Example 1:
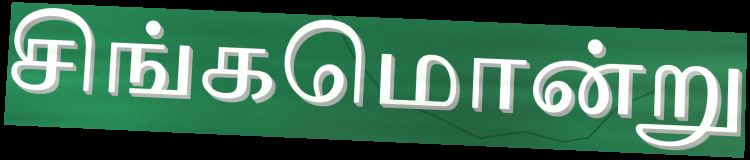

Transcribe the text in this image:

சிங்கமொன்று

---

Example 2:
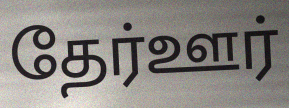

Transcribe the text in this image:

தேர்ஊர்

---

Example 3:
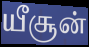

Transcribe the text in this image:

யீசூன்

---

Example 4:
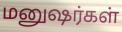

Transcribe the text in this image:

மனுஷர்கள்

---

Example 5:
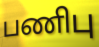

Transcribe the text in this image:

பணிபு